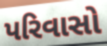
પરિવાસો